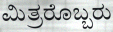
ಮಿತ್ರರೊಬ್ಬರು